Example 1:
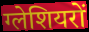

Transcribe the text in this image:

ग्‍लेशियरों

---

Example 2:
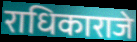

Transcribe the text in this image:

राधिकाराजे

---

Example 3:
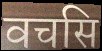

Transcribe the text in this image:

वचसि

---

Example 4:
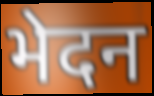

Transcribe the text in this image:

भेदन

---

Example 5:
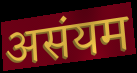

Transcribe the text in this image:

असंयम